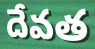
దేవత